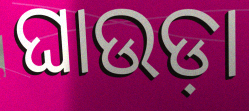
ଘାଉଡ଼ା